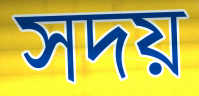
সদয়